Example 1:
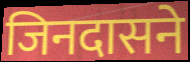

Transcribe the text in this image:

जिनदासने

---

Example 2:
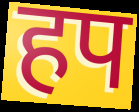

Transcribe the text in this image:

हप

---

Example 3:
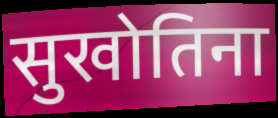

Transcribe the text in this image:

सुखोतिना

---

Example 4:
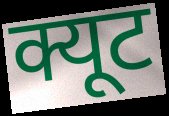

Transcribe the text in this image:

क्यूट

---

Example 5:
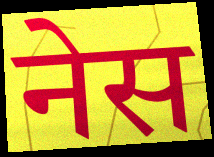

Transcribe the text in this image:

नेस